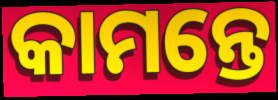
କାମନ୍ତେ